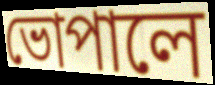
ভোপালে